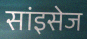
सांइसेज